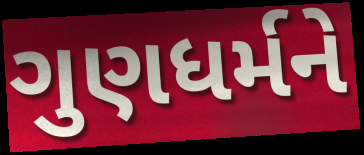
ગુણધર્મને